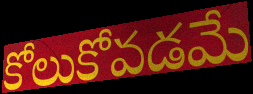
కోలుకోవడమే